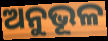
ଅନୁଭୂଳ